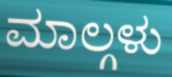
ಮಾಲ್ಗಳು